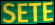
SETE